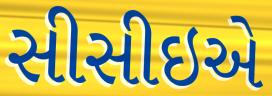
સીસીઇએ